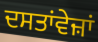
ਦਸਤਾਂਵੇਜ਼ਾਂ